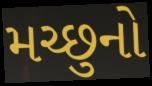
મચ્છુનો